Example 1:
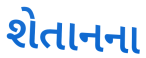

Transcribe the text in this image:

શેતાનના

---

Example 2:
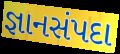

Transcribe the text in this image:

જ્ઞાનસંપદા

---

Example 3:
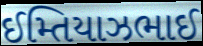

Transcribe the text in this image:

ઈમ્તિયાઝભાઈ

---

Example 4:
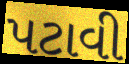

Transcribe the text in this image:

પટાવી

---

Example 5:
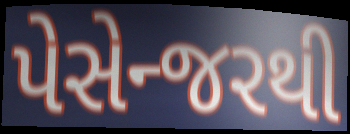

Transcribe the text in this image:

પેસેન્જરથી